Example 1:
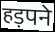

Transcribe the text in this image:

हड़पने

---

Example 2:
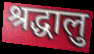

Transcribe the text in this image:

श्रद्धालु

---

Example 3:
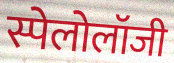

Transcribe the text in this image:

स्पेलोलॉजी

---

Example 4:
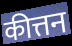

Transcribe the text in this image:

कीत्तन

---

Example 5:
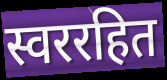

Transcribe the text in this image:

स्वररहित